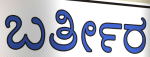
ಬರ್ತೀರ